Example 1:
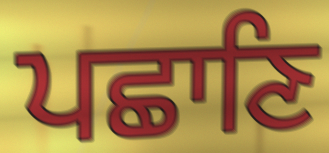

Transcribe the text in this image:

ਪਛਾਣਿ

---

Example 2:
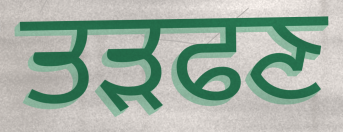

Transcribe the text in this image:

ਤੜਫਣ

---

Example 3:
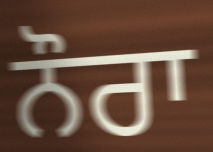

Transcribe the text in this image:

ਨੌਰਾ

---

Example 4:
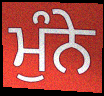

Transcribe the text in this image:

ਮੁੰਨੇ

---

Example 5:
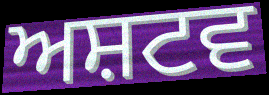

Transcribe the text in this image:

ਅਸ਼ਟਵ